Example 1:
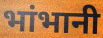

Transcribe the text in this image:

भांभानी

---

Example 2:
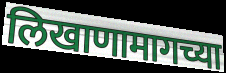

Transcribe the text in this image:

लिखाणामागच्या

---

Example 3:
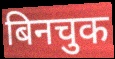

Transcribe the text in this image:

बिनचुक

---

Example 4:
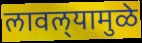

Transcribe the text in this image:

लावल्यामुळे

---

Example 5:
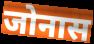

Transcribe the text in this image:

जोनास